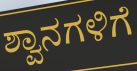
ಶ್ವಾನಗಳಿಗೆ